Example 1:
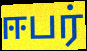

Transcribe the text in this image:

ஈபர்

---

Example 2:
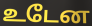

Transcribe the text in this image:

உடேன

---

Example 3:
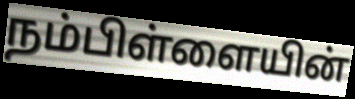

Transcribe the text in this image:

நம்பிள்ளையின்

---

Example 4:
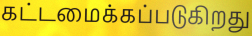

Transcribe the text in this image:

கட்டமைக்கப்படுகிறது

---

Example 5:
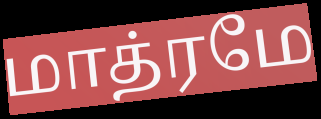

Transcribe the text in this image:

மாத்ரமே